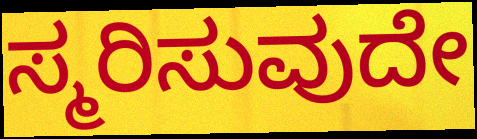
ಸ್ಮರಿಸುವುದೇ